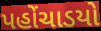
પહોંચાડયો